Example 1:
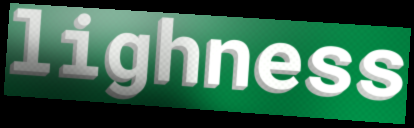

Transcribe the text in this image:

lighness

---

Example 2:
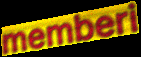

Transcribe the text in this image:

memberi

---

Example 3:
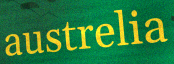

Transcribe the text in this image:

austrelia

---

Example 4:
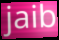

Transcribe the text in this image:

jaib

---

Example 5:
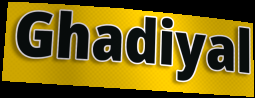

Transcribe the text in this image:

Ghadiyal